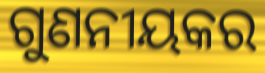
ଗୁଣନୀୟକର